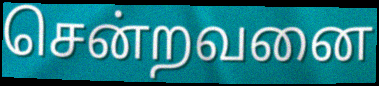
சென்றவனை